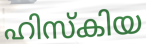
ഹിസ്കിയ